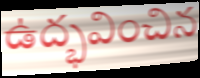
ఉద్భవించిన